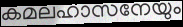
കമലഹാസനേയും